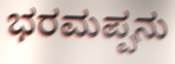
ಭರಮಪ್ಪನು